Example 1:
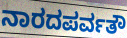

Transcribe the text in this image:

ನಾರದಪರ್ವತೌ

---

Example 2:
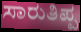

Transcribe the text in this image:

ಸಾರುತಿಪ್ಪ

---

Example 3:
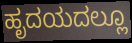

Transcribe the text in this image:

ಹೃದಯದಲ್ಲೂ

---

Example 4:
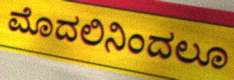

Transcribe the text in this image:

ಮೊದಲಿನಿಂದಲೂ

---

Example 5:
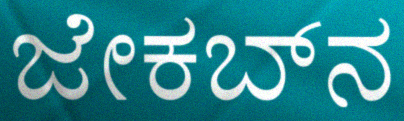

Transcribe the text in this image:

ಜೇಕಬ್‌ನ